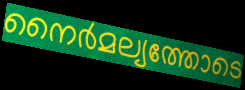
നൈർമല്യത്തോടെ